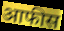
आफीस